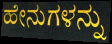
ಹೇನುಗಳನ್ನು